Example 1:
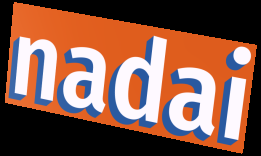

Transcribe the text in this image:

nadai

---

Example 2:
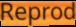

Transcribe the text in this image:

Reprod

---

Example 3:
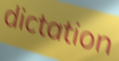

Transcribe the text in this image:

dictation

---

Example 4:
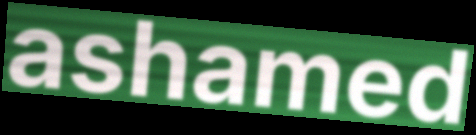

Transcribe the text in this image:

ashamed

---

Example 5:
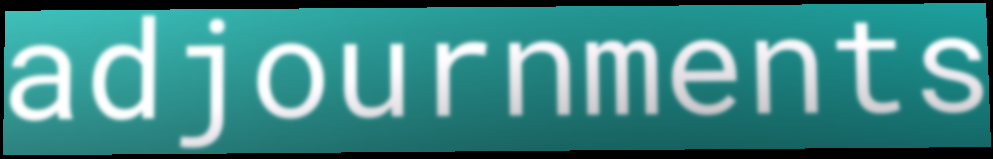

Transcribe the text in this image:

adjournments